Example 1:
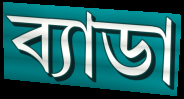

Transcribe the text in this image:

ব্যাডা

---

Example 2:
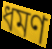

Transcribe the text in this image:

ধমণ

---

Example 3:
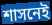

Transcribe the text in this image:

শাসনেই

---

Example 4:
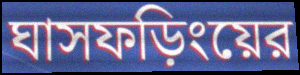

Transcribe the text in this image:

ঘাসফড়িংয়ের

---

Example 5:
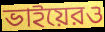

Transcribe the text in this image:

ভাইয়েরও